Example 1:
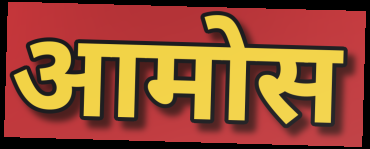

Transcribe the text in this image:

आमोस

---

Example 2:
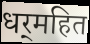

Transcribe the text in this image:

धर्महित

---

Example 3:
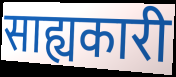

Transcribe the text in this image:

साह्यकारी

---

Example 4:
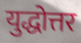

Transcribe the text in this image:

युद्धोत्तर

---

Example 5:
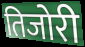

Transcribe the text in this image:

तिजोरी